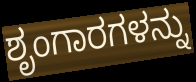
ಶೃಂಗಾರಗಳನ್ನು